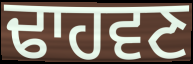
ਢਾਹਵਣ